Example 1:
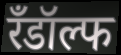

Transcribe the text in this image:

रँडॉल्फ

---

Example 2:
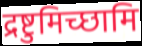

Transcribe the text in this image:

द्रष्टुमिच्छामि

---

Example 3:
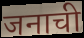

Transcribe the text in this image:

जनाची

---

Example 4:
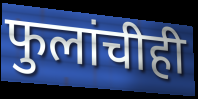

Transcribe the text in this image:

फुलांचीही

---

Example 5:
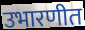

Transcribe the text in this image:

उभारणीत